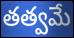
తత్వమే